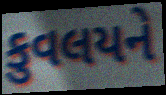
કુવલયને